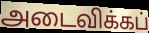
அடைவிக்கப்